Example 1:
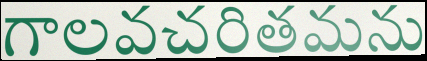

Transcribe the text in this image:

గాలవచరితమను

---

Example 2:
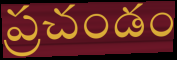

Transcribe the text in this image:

ప్రచండం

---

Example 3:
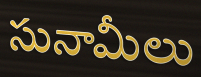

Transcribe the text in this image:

సునామీలు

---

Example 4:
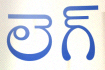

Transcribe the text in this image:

లెగ్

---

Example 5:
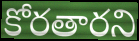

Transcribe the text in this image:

కోరతారని